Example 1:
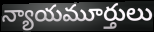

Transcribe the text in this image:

న్యాయమూర్తులు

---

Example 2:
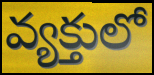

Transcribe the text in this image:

వ్యక్తులో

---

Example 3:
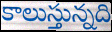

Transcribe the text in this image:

కాలుస్తున్నది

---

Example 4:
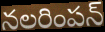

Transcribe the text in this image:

నలరింపన్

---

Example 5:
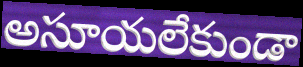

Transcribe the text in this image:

అసూయలేకుండా